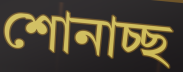
শোনাচ্ছ